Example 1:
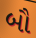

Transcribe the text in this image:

બૌ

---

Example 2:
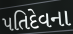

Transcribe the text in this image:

પતિદેવના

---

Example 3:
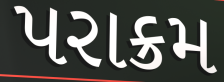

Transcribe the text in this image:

પરાક્રમ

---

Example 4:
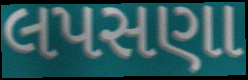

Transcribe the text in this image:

લપસણા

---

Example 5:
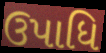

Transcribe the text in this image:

ઉપાધિ